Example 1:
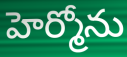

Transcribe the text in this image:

హెర్మోను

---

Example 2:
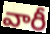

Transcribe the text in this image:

వారీ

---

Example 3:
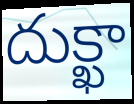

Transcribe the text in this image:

దుక్ఖా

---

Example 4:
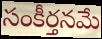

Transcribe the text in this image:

సంకీర్తనమే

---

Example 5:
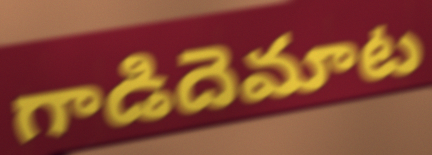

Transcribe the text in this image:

గాడిదెమాట